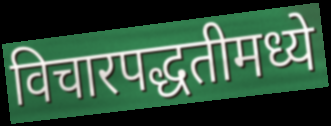
विचारपद्धतीमध्ये